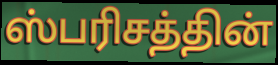
ஸ்பரிசத்தின்